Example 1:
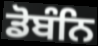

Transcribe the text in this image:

ਡੋਬੰਨਿ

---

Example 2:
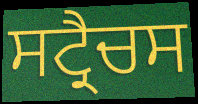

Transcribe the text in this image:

ਸਟ੍ਰੈਚਸ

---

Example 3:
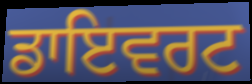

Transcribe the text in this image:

ਡਾਇਵਰਟ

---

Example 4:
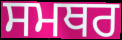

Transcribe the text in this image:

ਸਮਥਰ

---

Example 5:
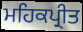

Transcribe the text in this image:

ਮਹਿਕਪ੍ਰੀਤ